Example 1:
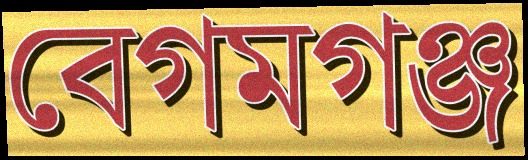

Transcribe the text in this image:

বেগমগঞ্জ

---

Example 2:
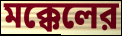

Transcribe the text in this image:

মক্কেলের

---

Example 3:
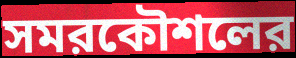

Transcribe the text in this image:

সমরকৌশলের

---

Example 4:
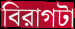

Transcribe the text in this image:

বিরাগটা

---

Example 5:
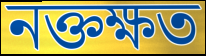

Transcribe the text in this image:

নক্তক্ষত